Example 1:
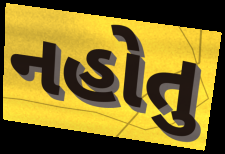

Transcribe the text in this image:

નહોતુ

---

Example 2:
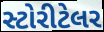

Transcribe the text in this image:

સ્ટોરીટેલર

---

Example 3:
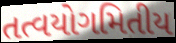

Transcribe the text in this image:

તત્વયોગમિતીય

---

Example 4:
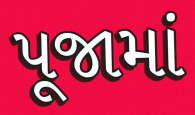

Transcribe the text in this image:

પૂજામાં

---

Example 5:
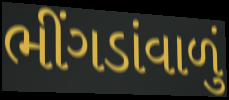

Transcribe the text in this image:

ભીંગડાંવાળું